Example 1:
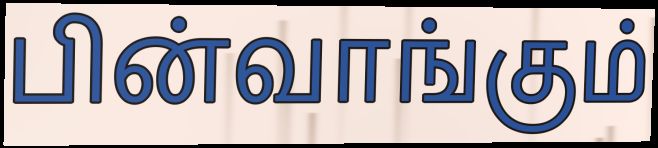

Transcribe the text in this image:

பின்வாங்கும்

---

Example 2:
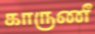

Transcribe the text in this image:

காருணீ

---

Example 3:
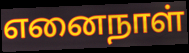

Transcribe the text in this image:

எனைநாள்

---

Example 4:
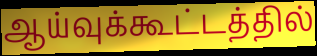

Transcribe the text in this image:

ஆய்வுக்கூட்டத்தில்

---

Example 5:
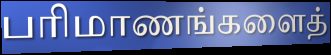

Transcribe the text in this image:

பரிமாணங்களைத்